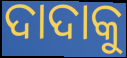
ଦାଦାକୁ